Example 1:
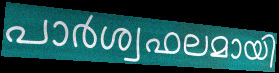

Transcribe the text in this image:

പാർശ്വഫലമായി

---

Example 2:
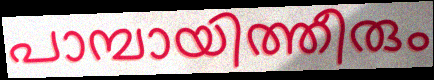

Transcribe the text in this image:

പാമ്പായിത്തീരും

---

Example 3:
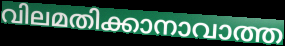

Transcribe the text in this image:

വിലമതിക്കാനാവാത്ത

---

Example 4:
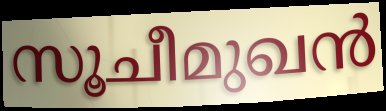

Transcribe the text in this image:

സൂചീമുഖൻ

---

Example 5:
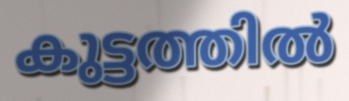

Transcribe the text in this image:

കുട്ടത്തിൽ